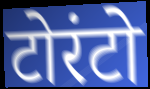
टोरंटो